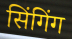
सिंगिंग